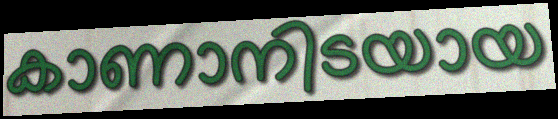
കാണാനിടയായ